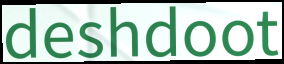
deshdoot